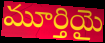
మూర్తియై